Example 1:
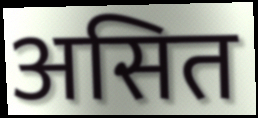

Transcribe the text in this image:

असित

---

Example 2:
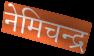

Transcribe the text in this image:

नेमिचन्द्र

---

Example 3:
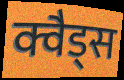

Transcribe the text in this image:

क्वैड्स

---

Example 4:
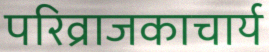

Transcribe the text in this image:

परिव्राजकाचार्य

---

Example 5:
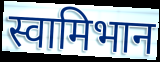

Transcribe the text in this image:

स्वामिभान